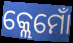
କ୍ଲେମୋଁ